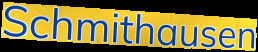
Schmithausen